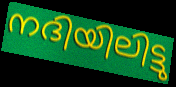
നദിയിലിട്ടു